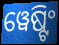
ୱେଷ୍ଟିଂ